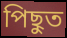
পিছুত